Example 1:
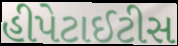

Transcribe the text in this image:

હીપેટાઈટીસ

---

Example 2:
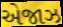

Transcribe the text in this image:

એજાઝ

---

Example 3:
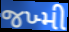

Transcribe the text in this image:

જખ્મી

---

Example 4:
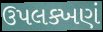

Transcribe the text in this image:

ઉપલક્ખણં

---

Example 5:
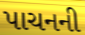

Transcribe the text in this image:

પાચનની